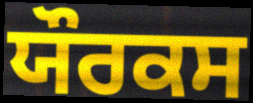
ਯੌਰਕਸ